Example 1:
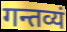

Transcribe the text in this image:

गन्तव्यं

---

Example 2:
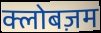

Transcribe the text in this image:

क्लोबज़म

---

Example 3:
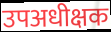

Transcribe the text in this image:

उपअधीक्षक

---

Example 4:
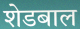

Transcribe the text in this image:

शेडबाल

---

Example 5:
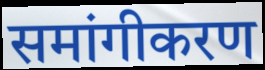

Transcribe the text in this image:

समांगीकरण